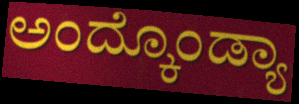
ಅಂದ್ಕೊಂಡ್ಯಾ